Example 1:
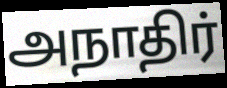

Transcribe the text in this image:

அநாதிர்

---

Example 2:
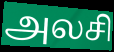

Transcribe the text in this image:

அலசி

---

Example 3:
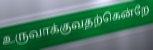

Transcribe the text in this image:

உருவாக்குவதற்கென்றே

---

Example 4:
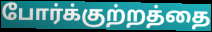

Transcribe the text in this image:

போர்க்குற்றத்தை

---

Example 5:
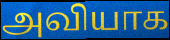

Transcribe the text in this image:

அவியாக